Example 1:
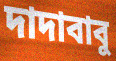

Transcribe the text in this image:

দাদাবাবু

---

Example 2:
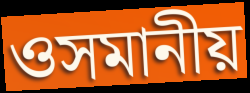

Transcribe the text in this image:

ওসমানীয়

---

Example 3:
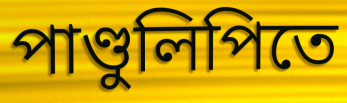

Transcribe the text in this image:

পাণ্ডুলিপিতে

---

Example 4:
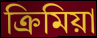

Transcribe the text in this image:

ক্রিমিয়া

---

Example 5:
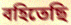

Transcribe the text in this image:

বহিতেছি